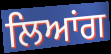
ਲਿਆਂਗ